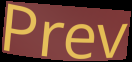
Prev